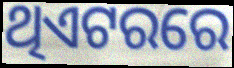
ଥିଏଟରରେ